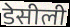
डेसीली